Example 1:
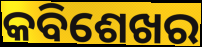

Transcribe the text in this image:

କବିଶେଖର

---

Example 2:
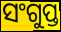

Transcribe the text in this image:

ସଂଗୁପ୍ତ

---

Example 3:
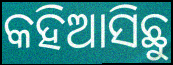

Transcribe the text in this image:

କହିଆସିଛୁ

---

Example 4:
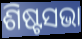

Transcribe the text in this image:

ଶିଷ୍ଟସଭା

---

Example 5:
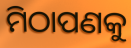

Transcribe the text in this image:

ମିଠାପଣକୁ